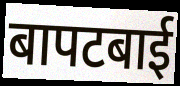
बापटबाई